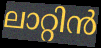
ലാറ്റിൻ